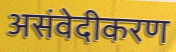
असंवेदीकरण